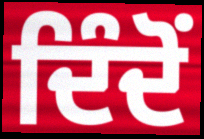
ਦਿੰਦੋਂ